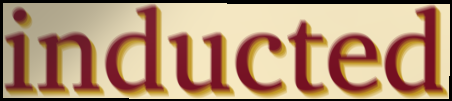
inducted